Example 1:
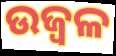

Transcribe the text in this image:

ଉଜ୍ବଳ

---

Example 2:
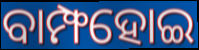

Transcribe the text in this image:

ବାମ୍ଫହୋଇ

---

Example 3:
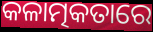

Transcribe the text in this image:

କଳାତ୍ମକତାରେ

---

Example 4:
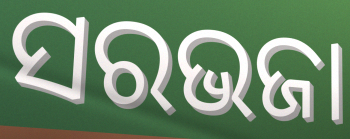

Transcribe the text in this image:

ସରଭଜା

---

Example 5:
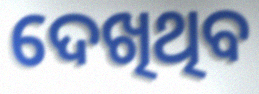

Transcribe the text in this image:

ଦେଖିଥିବ